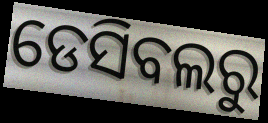
ଡେସିବଲରୁ